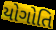
યોગોતિ